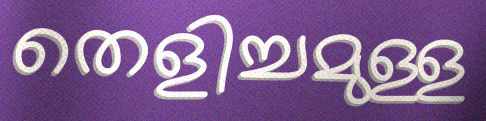
തെളിച്ചമുള്ള